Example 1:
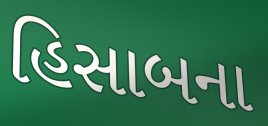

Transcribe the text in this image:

હિસાબના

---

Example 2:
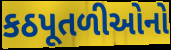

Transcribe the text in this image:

કઠપૂતળીઓનો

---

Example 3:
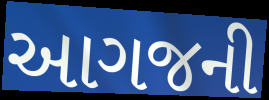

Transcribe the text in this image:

આગજની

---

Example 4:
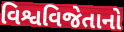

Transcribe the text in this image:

વિશ્વવિજેતાનો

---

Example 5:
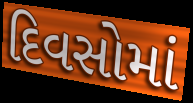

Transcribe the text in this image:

દિવસોમાં